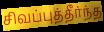
சிவப்புத்தீர்ந்த